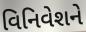
વિનિવેશને